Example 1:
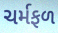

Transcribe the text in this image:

ચર્મફળ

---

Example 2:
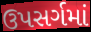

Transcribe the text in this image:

ઉપસર્ગમાં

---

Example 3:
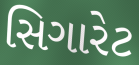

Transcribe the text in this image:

સિગારેટ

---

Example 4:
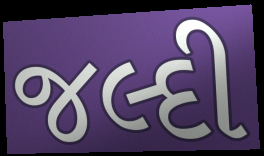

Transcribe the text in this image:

જલ્દી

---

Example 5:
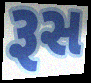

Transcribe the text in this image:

રૂસ